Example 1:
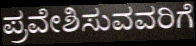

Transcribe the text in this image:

ಪ್ರವೇಶಿಸುವವರಿಗೆ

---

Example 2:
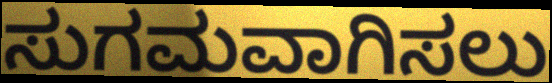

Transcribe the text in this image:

ಸುಗಮವಾಗಿಸಲು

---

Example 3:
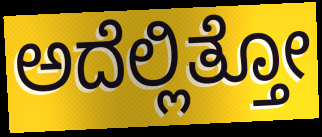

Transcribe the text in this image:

ಅದೆಲ್ಲಿತ್ತೋ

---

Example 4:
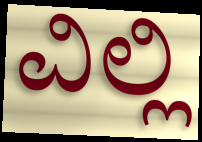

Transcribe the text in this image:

ವಿಲ್ಲಿ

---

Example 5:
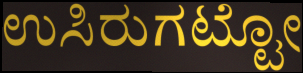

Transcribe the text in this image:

ಉಸಿರುಗಟ್ಟೋ